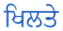
ਖਿਲਤੇ